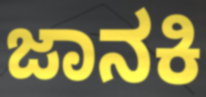
ಜಾನಕಿ